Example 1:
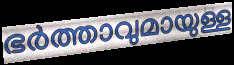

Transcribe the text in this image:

ഭർത്താവുമായുള്ള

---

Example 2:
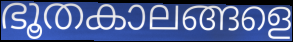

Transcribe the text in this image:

ഭൂതകാലങ്ങളെ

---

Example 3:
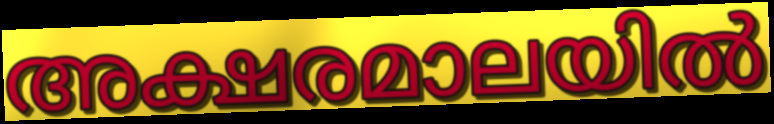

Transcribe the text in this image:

അക്ഷരമാലയിൽ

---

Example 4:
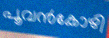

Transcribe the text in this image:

പൂവൻകോഴി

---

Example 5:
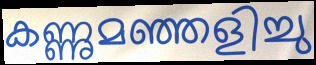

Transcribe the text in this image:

കണ്ണുമഞ്ഞളിച്ചു